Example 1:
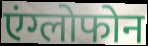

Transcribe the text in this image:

एंग्लोफोन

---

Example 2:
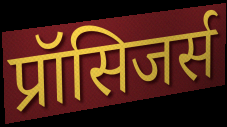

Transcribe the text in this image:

प्रॉसिजर्स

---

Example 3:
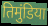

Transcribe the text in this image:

तिमुंडिया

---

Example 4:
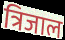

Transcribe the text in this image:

त्रिजाल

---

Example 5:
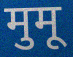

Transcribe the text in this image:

मुमू